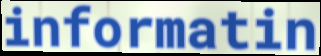
informatin